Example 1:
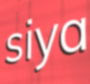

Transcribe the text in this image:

siya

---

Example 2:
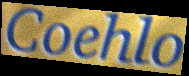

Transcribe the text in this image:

Coehlo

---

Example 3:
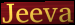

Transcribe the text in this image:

Jeeva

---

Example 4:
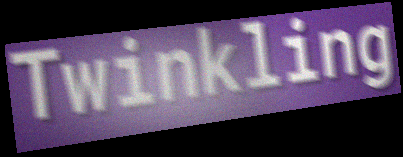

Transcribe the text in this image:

Twinkling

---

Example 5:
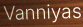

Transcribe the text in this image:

Vanniyas